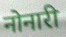
नोनारी